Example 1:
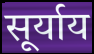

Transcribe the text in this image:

सूर्याय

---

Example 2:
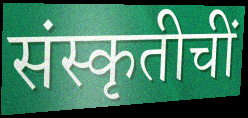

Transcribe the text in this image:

संस्कृतीचीं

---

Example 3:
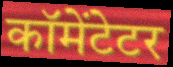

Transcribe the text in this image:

कॉमेंटेटर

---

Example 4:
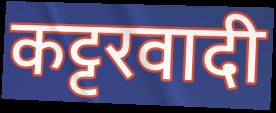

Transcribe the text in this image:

कट्टरवादी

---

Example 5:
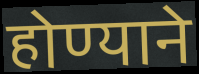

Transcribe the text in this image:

होण्याने